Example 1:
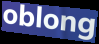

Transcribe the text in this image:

oblong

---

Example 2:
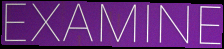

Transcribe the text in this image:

EXAMINE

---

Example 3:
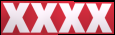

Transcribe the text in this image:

xxxx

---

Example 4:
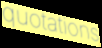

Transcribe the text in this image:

quotations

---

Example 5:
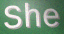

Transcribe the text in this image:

She